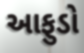
આફુડો